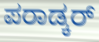
ಪರಾಡ್ಕರ್